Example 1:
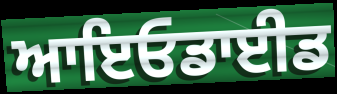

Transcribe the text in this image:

ਆਇਓਡਾਈਡ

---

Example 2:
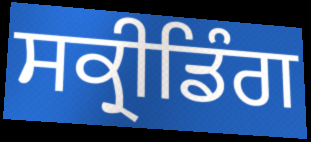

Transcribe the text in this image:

ਸਕ੍ਰੀਡਿੰਗ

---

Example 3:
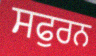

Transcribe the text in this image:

ਸਫੁਰਨ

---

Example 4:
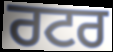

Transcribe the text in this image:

ਰਟਰ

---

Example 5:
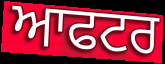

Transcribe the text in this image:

ਆਫਟਰ